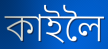
কাইলৈ